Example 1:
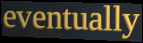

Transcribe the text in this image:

eventually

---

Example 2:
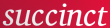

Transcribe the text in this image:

succinct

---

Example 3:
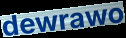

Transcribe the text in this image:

dewrawo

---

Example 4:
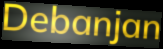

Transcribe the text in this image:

Debanjan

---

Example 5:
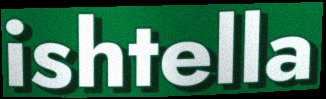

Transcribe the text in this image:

ishtella